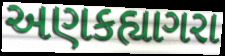
અણકહ્યાગરા